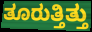
ತೂರುತ್ತಿತ್ತು